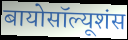
बायोसॉल्यूशंस